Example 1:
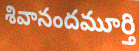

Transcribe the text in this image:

శివానందమూర్తి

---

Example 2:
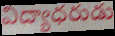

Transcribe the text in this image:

విద్యాధరుడు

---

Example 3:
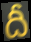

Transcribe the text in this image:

దీ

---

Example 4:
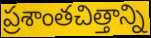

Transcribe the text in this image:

ప్రశాంతచిత్తాన్ని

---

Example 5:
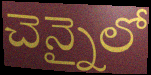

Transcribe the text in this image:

చెన్నైలో